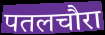
पतलचौरा